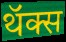
थॅक्स